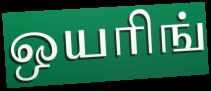
ஒயரிங்